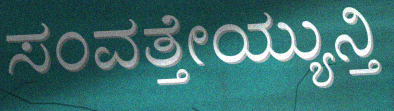
ಸಂವತ್ತೇಯ್ಯುನ್ತಿ